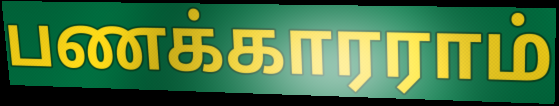
பணக்காரராம்